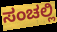
ಸಂಚಲ್ಲಿ